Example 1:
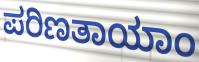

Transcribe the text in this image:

ಪರಿಣತಾಯಾಂ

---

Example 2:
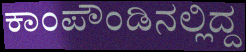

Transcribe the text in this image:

ಕಾಂಪೌಂಡಿನಲ್ಲಿದ್ದ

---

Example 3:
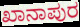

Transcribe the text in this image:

ಖಾನಾಪುರ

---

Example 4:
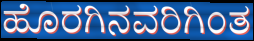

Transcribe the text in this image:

ಹೊರಗಿನವರಿಗಿಂತ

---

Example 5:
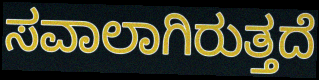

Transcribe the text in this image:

ಸವಾಲಾಗಿರುತ್ತದೆ